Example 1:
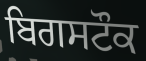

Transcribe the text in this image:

ਬਿਗਸਟੌਕ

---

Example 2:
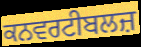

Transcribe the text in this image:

ਕਨਵਰਟੀਬਲਜ਼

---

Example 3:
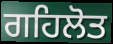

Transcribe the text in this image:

ਗਹਿਲੋਤ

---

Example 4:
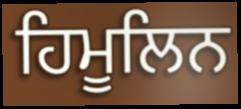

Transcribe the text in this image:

ਹਿਮੂਲਿਨ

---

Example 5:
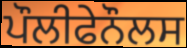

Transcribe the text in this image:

ਪੌਲੀਫੇਨੌਲਸ